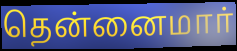
தென்னைமார்